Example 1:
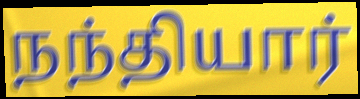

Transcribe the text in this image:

நந்தியார்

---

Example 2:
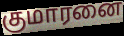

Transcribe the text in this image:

குமாரனை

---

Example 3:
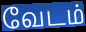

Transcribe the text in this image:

வேடம்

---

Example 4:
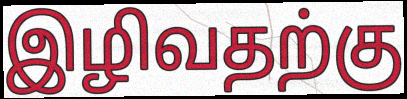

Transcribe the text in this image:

இழிவதற்கு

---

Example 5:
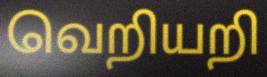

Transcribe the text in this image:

வெறியறி